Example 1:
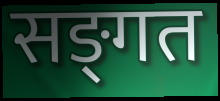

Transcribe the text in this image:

सङ्गत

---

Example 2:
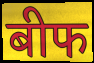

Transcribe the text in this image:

बीफ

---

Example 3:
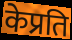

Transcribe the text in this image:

केप्रति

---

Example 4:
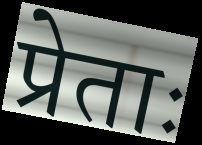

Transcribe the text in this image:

प्रेताः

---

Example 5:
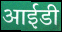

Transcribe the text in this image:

आई़डी